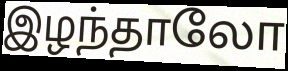
இழந்தாலோ